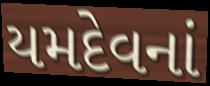
યમદેવનાં